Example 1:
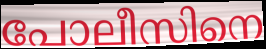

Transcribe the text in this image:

പോലീസിനെ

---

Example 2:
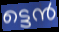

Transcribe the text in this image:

ട്ടെൻ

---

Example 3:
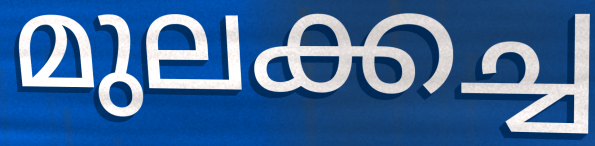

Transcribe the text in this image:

മുലക്കച്ച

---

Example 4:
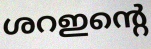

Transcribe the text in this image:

ശറഇന്റെ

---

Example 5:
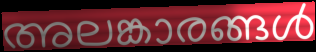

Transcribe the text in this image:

അലങ്കാരങ്ങൾ